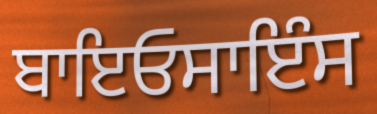
ਬਾਇਓਸਾਇੰਸ